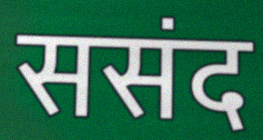
ससंद